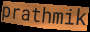
prathmik